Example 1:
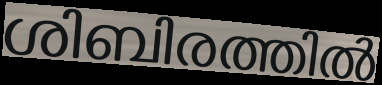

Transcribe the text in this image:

ശിബിരത്തിൽ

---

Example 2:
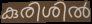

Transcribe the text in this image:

കുരിശിൽ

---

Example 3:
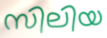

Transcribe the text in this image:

സിലിയ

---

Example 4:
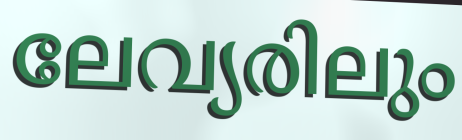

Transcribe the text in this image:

ലേവ്യരിലും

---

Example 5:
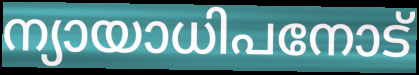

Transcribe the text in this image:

ന്യായാധിപനോട്